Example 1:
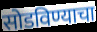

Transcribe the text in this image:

सोडविण्याचा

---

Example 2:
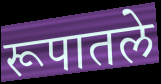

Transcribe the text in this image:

रूपातले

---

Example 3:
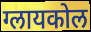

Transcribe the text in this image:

ग्लायकोल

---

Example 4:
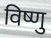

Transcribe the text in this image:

विष्णु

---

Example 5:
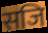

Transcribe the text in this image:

सजि